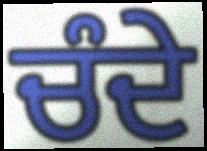
ਚੰਦੇ